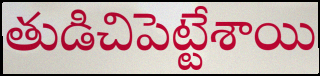
తుడిచిపెట్టేశాయి